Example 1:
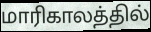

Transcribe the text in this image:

மாரிகாலத்தில்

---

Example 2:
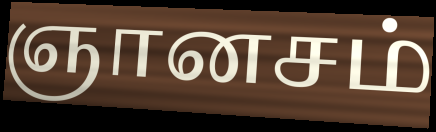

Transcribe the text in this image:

ஞானசம்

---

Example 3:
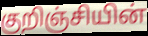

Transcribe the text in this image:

குறிஞ்சியின்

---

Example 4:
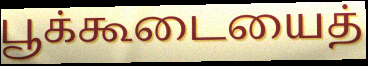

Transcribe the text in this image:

பூக்கூடையைத்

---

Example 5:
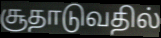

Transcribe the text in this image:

சூதாடுவதில்